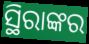
ସ୍ଥିରାଙ୍କର